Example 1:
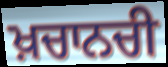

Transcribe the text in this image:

ਖ਼ਚਾਨਚੀ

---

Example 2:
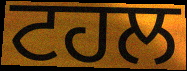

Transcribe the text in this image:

ਟਹਲ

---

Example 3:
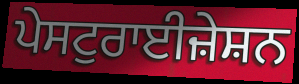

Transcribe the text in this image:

ਪੇਸਟੁਰਾਈਜ਼ੇਸ਼ਨ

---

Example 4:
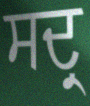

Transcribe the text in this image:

ਸਦ੍ਰ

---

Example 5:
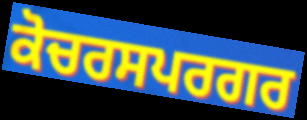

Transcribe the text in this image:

ਕੋਚਰਸਪਰਗਰ